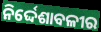
ନିର୍ଦ୍ଦେଶାବଳୀର